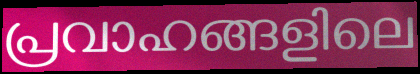
പ്രവാഹങ്ങളിലെ